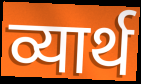
व्यार्थ